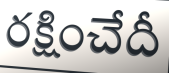
రక్షించేదీ